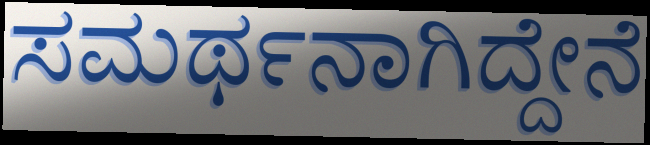
ಸಮರ್ಥನಾಗಿದ್ದೇನೆ